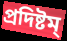
প্রদিষ্টম্